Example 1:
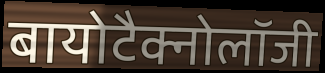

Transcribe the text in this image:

बायोटैक्नोलॉजी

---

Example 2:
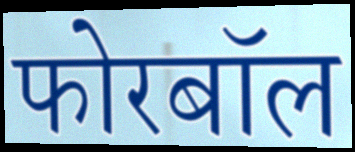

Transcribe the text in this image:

फोरबॉल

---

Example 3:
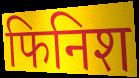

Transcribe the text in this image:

फिनिश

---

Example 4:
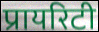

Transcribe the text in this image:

प्रायरिटी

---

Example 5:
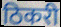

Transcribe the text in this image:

ठिकरी